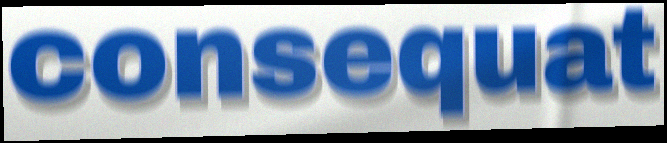
consequat